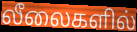
லீலைகளில்